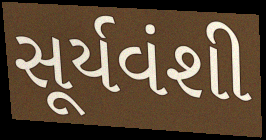
સૂર્યવંશી